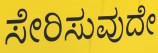
ಸೇರಿಸುವುದೇ